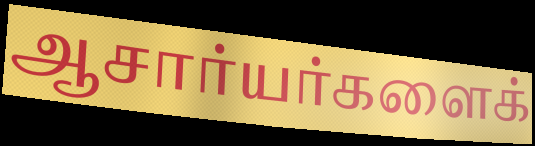
ஆசார்யர்களைக்